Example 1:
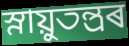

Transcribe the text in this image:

স্নায়ুতন্ত্ৰৰ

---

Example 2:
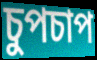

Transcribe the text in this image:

চুপচাপ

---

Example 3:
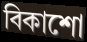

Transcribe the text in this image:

বিকাশো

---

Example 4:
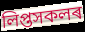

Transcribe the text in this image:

লিপ্তসকলৰ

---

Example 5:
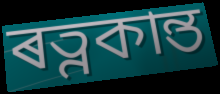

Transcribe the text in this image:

ৰত্নকান্ত